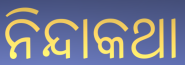
ନିନ୍ଦାକଥା